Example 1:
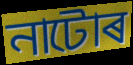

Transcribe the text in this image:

নাটোৰ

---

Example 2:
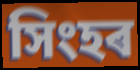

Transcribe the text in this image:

সিংহৰ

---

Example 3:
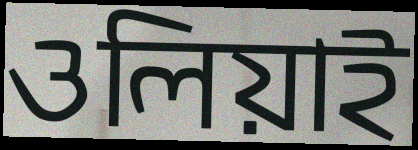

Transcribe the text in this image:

ওলিয়াই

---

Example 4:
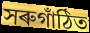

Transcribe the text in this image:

সৰুগাঁঠিত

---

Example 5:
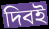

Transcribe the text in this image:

দিবই